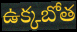
ఉక్కబోత